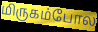
மிருகம்போல